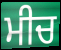
ਮੀਚ